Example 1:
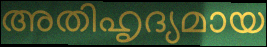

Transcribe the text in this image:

അതിഹൃദ്യമായ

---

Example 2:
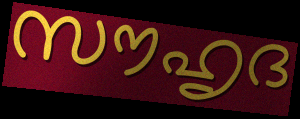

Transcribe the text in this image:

സൗഹൃദ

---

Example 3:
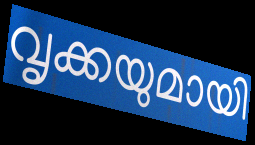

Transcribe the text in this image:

വൃക്കയുമായി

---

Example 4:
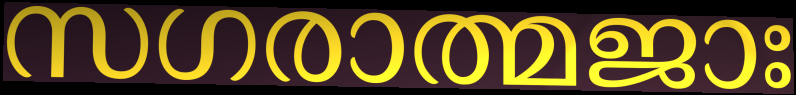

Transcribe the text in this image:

സഗരാത്മജാഃ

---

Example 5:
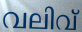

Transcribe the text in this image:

വലിവ്